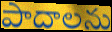
పాదాలను